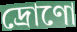
দ্রোণো